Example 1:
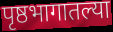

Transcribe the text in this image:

पृष्ठभागातल्या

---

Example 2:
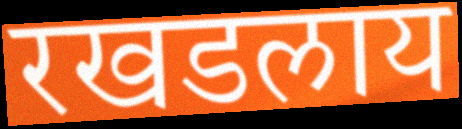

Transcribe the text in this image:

रखडलाय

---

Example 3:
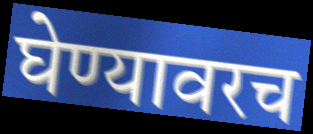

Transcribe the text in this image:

घेण्यावरच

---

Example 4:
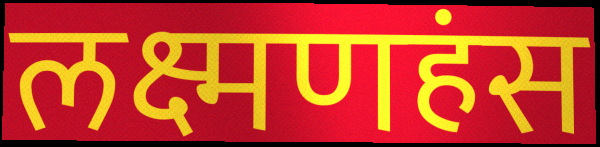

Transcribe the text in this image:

लक्ष्मणहंस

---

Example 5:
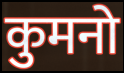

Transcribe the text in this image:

कुमनो